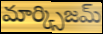
మార్క్సిజమ్